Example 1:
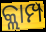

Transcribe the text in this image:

କ୍ଲାମ୍ପ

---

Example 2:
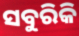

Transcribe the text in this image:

ସବୁରିକି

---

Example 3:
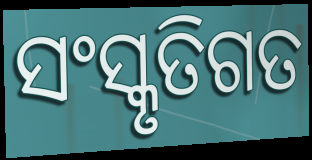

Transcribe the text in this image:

ସଂସ୍କୃତିଗତ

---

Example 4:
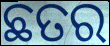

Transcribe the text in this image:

ଛତର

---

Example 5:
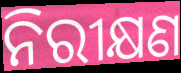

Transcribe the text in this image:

ନିରୀକ୍ଷଣ